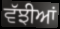
ਵੱਝੀਆਂ